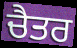
ਚੈਤਰ